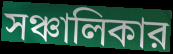
সঞ্চালিকার